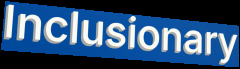
Inclusionary